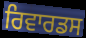
ਰਿਵਾਰਡਸ